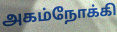
அகம்நோக்கி